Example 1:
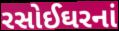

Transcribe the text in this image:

રસોઈઘરનાં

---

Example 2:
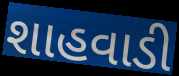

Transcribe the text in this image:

શાહવાડી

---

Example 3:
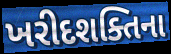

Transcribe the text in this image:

ખરીદશક્તિના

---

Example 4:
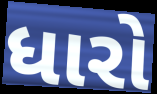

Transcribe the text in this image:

ધારો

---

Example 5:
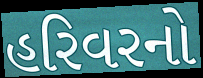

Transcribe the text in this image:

હરિવરનો